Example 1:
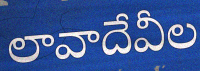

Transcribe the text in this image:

లావాదేవీల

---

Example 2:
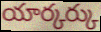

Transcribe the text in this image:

యార్కర్కు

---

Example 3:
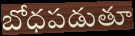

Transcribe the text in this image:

బోధపడుతూ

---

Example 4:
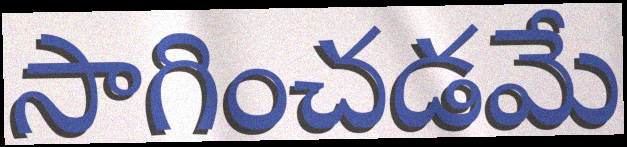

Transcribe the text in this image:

సాగించడమే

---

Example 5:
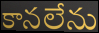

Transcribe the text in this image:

కానలేను